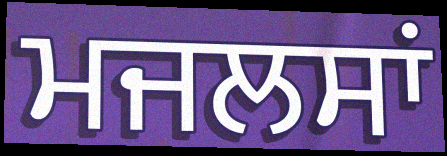
ਮਜਲਸਾਂ